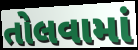
તોલવામાં